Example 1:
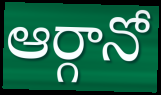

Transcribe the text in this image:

ఆర్గానో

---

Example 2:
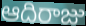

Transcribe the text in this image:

ఆదిరాజు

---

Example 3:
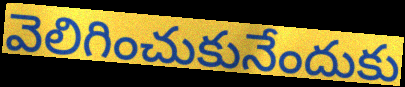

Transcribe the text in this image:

వెలిగించుకునేందుకు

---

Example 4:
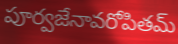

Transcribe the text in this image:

పూర్వజేనావరోపితమ్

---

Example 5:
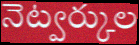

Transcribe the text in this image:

నెట్వర్కుల